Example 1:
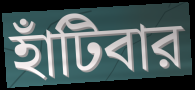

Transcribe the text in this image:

হাঁটিবার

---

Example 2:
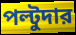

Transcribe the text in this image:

পল্টুদার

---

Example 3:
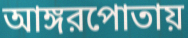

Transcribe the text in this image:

আঙ্গরপোতায়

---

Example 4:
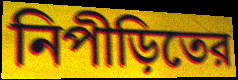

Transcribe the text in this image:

নিপীড়িতের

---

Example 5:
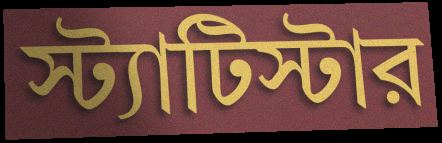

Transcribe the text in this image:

স্ট্যাটিস্টার